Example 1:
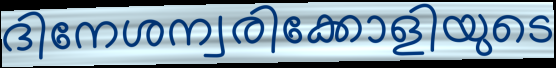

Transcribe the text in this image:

ദിനേശന്വരിക്കോളിയുടെ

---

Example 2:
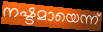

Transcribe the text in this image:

നഷ്ടമായെന്ന്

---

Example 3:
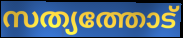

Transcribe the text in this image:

സത്യത്തോട്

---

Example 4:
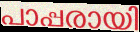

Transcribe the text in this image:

പാപ്പരായി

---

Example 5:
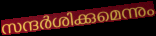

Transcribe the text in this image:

സന്ദർശിക്കുമെന്നും